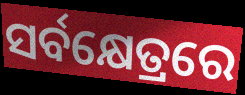
ସର୍ବକ୍ଷେତ୍ରରେ